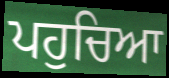
ਪਹੁਚਿਆ